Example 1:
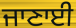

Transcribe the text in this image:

ਜਾਣਾਈ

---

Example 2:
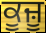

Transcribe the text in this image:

ਕੂਜ਼ੂ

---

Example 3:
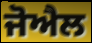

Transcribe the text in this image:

ਜੋਐਲ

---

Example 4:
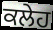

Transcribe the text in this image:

ਕਲੇਹ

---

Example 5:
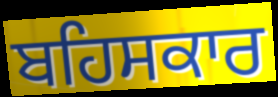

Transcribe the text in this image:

ਬਹਿਸਕਾਰ